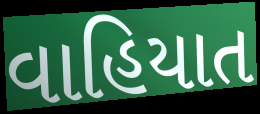
વાહિયાત